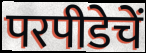
परपीडेचें